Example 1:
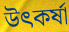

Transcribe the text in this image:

উৎকর্ষা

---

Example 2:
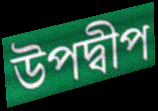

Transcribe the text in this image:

উপদ্বীপ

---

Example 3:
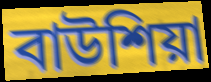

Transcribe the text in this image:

বাউশিয়া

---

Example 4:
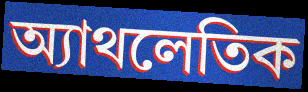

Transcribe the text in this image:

অ্যাথলেতিক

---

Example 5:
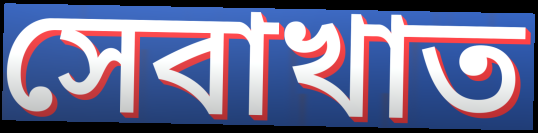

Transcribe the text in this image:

সেবাখাত